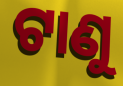
ଟାଣୁ